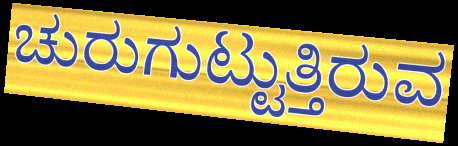
ಚುರುಗುಟ್ಟುತ್ತಿರುವ